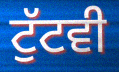
ਟੁੱਟਵੀ